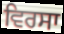
ਵਿਰਸਾ